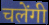
चलेंगी